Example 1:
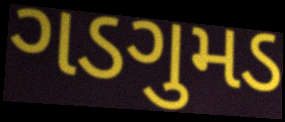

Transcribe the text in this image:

ગડગુમડ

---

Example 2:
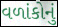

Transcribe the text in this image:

વળાંકોનું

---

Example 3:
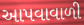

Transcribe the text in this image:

આપવાવાળી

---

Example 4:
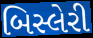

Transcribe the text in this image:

બિસ્લેરી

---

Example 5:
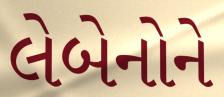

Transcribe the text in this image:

લેબેનોને